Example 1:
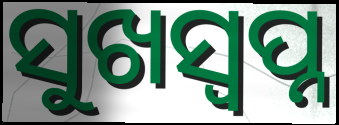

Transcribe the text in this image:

ସୁଖସ୍ୱପ୍ନ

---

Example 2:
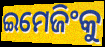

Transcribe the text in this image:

ଇମେଜିଂକୁ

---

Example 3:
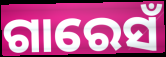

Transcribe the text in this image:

ଗାରେସଁ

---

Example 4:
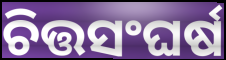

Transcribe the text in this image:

ଚିତ୍ତସଂଘର୍ଷ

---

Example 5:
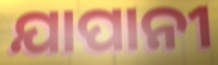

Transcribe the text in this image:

ଯାପାନୀ